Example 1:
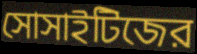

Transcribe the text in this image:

সোসাইটিজের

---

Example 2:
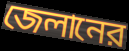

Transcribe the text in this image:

জেলানের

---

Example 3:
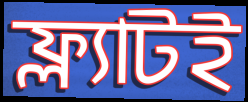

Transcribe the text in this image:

ফ্ল্যাটই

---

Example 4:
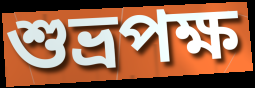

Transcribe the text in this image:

শুভ্রপক্ষ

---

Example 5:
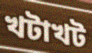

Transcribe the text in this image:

খটাখট